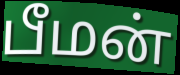
பீமன்